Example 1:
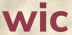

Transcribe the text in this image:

wic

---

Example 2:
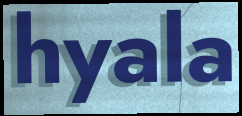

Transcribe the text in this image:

hyala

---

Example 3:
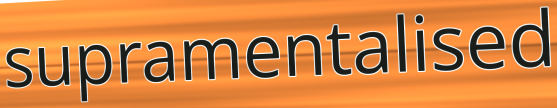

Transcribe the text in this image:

supramentalised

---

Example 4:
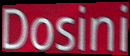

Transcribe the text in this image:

Dosini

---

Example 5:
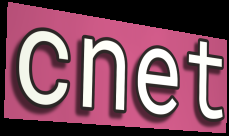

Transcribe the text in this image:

cnet